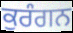
ਕੁਰੰਗਨ